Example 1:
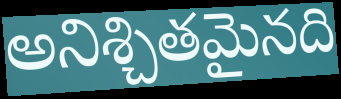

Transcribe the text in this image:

అనిశ్చితమైనది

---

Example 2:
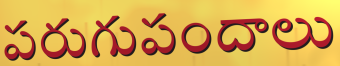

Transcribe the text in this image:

పరుగుపందాలు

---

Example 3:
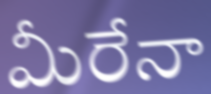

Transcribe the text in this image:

మీరేనా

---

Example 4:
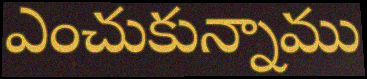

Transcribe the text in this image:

ఎంచుకున్నాము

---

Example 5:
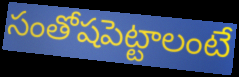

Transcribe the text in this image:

సంతోషపెట్టాలంటే